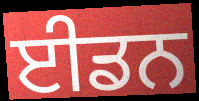
ਈਡਨ